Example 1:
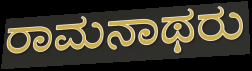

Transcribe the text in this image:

ರಾಮನಾಥರು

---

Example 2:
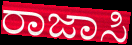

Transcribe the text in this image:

ರಾಜಾಸಿ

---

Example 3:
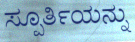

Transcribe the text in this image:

ಸ್ಪೂರ್ತಿಯನ್ನು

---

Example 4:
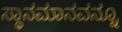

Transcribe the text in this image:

ಸ್ಥಾನಮಾನವನ್ನೂ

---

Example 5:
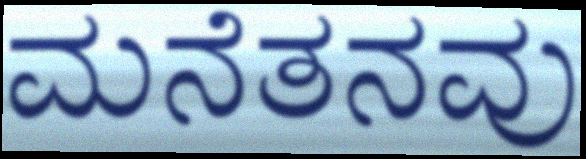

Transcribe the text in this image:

ಮನೆತನವು